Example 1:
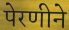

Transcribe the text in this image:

पेरणीने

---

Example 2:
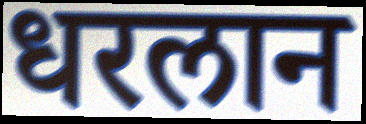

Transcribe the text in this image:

धरलान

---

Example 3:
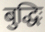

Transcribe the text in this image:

बुद्धिः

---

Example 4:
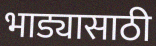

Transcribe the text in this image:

भाड्यासाठी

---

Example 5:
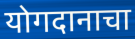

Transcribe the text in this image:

योगदानाचा